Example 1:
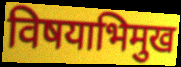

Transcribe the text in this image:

विषयाभिमुख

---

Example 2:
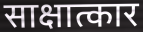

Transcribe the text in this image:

साक्षात्कार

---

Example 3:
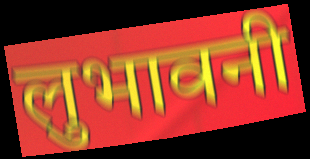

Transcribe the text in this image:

लुभावनी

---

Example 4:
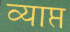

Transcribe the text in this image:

व्याप्त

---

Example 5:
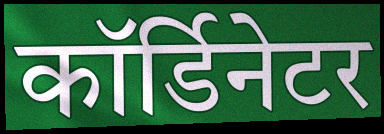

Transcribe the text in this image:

कॉर्डिनेटर